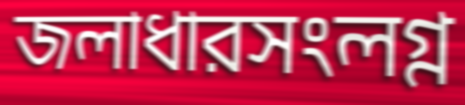
জলাধারসংলগ্ন